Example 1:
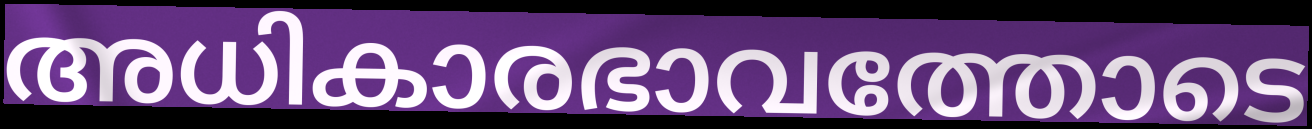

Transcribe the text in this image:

അധികാരഭാവത്തോടെ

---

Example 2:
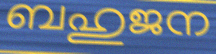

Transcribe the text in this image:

ബഹുജന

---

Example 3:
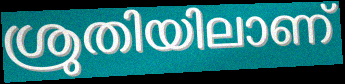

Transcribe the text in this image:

ശ്രുതിയിലാണ്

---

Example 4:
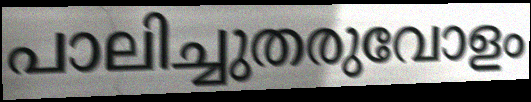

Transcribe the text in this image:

പാലിച്ചുതരുവോളം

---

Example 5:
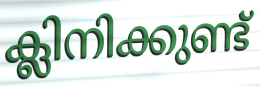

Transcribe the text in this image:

ക്ലിനിക്കുണ്ട്